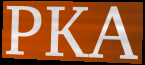
PKA